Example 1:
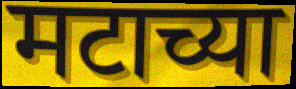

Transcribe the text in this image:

मटाच्या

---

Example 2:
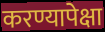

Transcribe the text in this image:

करण्यापेक्षा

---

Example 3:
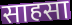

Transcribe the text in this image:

साहसा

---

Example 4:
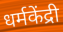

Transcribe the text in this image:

धर्मकेंद्री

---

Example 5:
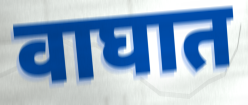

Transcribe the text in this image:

वाघात